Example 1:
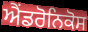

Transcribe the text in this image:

ਐਂਡਰੋਨਿਕੋਸ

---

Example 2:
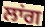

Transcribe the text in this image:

ਲਾਂਗ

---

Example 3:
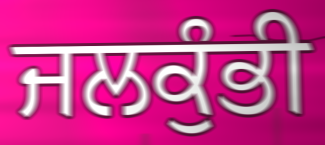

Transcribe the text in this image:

ਜਲਕੁੰਭੀ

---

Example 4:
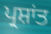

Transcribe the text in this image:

ਪ੍ਰਸ਼ਾਂਤ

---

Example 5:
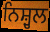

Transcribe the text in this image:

ਨਿਸ਼੍ਚਲ